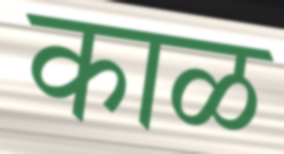
काळ